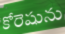
కోరెషును